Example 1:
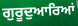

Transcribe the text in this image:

ਗੁਰੂਦੁਆਰਿਆਂ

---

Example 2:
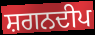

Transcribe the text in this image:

ਸ਼ਗਨਦੀਪ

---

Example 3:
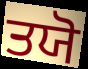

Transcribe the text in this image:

ਤਯੋ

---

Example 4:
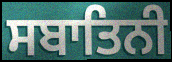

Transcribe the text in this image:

ਸਬਾਤਿਨੀ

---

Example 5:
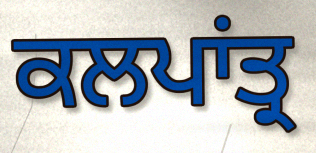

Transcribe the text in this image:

ਕਲਪਾਂਤ੍ਰ